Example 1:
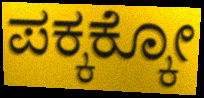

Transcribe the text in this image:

ಪಕ್ಕಕ್ಕೋ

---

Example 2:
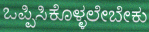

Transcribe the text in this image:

ಒಪ್ಪಿಸಿಕೊಳ್ಳಲೇಬೇಕು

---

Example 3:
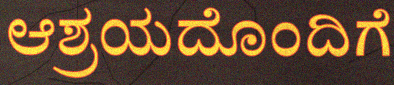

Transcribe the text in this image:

ಆಶ್ರಯದೊಂದಿಗೆ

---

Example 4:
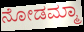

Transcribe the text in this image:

ನೋಡಮ್ಮಾ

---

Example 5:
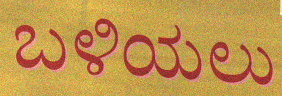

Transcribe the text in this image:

ಬಳಿಯಲು